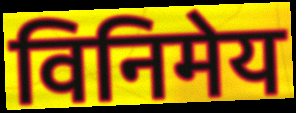
विनिमेय